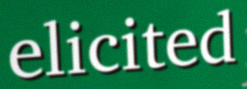
elicited